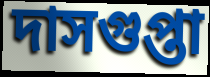
দাসগুপ্তা